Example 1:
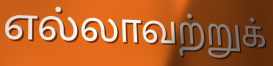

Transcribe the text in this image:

எல்லாவற்றுக்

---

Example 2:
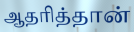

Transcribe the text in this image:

ஆதரித்தான்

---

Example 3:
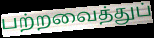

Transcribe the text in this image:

பற்றவைத்துப்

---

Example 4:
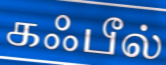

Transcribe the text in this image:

கஃபீல்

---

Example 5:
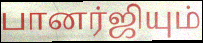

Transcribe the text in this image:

பானர்ஜியும்